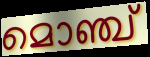
മൊഞ്ച്